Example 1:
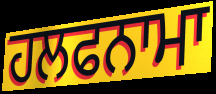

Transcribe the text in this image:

ਹਲਫਨਾਮਾ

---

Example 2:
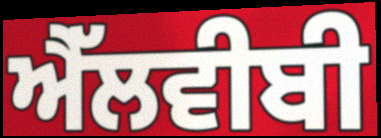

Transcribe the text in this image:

ਐੱਲਵੀਬੀ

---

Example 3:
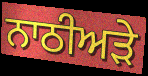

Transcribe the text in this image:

ਨਾਠੀਅੜੇ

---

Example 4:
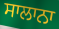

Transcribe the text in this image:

ਸਾਲਾਨਾ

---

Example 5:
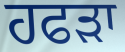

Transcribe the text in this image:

ਹਫੜਾ